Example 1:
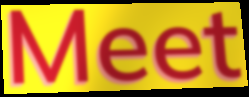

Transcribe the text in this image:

Meet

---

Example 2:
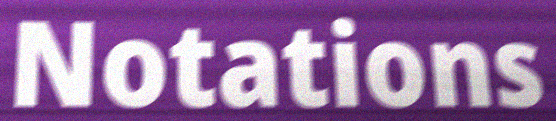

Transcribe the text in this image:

Notations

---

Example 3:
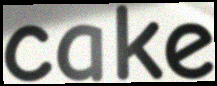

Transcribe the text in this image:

cake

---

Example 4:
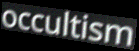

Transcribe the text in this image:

occultism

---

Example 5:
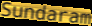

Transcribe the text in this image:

Sundaram